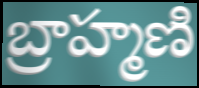
బ్రాహ్మణి